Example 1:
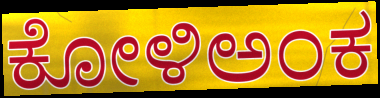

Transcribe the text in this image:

ಕೋಳಿಅಂಕ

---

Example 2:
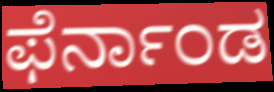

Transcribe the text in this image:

ಫೆರ್ನಾಂಡ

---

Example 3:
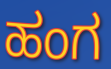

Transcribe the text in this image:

ಹಂಗ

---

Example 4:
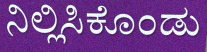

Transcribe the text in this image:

ನಿಲ್ಲಿಸಿಕೊಂಡು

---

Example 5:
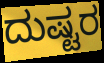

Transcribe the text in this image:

ದುಷ್ಟರ